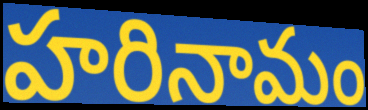
హరినామం